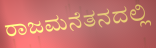
ರಾಜಮನೆತನದಲ್ಲಿ